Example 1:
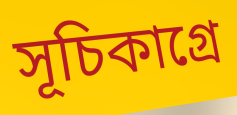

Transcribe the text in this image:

সূচিকাগ্রে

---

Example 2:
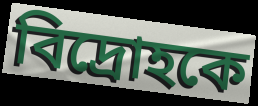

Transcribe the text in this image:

বিদ্রোহকে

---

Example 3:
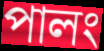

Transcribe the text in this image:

পালং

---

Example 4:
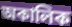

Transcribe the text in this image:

অকালিক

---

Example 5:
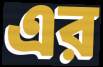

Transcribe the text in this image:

এর